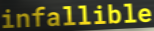
infallible